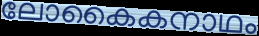
ലോകൈകനാഥം